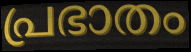
പ്രഭാതം